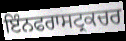
ਇੰਨਫਰਾਸਟ੍ਰਕਚਰ